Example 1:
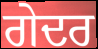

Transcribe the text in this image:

ਗੇਦਰ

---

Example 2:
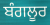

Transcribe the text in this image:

ਬੰਗਲੂਰ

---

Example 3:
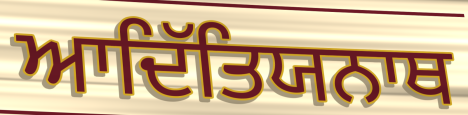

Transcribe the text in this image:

ਆਦਿੱਤਿਯਨਾਥ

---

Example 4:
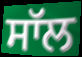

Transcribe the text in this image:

ਸਾੱਲ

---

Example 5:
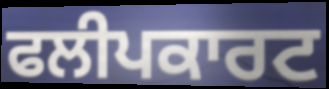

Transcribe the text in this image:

ਫਲੀਪਕਾਰਟ